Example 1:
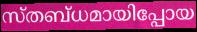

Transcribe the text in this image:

സ്തബ്ധമായിപ്പോയ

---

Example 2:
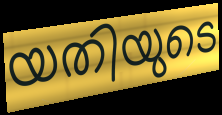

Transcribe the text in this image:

യതിയുടെ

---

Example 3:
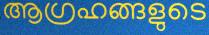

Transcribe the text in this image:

ആഗ്രഹങ്ങളുടെ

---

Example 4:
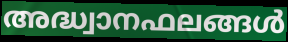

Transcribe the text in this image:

അദ്ധ്വാനഫലങ്ങൾ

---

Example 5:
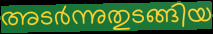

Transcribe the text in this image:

അടർന്നുതുടങ്ങിയ